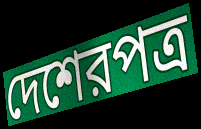
দেশেরপত্র